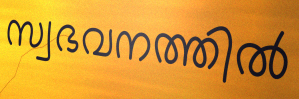
സ്വഭവനത്തിൽ